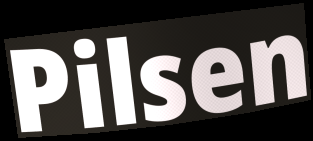
Pilsen